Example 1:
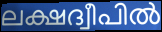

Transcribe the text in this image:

ലക്ഷദ്വീപിൽ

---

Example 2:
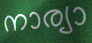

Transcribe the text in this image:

നാര്യാ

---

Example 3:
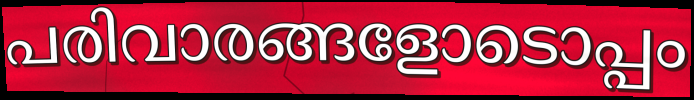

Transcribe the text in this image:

പരിവാരങ്ങളോടൊപ്പം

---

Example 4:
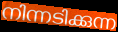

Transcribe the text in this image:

നിന്നടിക്കുന്ന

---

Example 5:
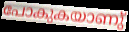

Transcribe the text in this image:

പോകുകയാണു്